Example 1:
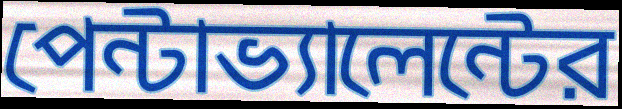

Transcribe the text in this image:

পেন্টাভ্যালেন্টের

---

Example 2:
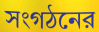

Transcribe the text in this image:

সংগঠনের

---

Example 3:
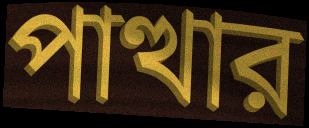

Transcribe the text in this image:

পাত্থার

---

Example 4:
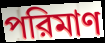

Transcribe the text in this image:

পরিমাণ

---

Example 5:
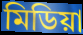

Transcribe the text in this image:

মিডিয়া